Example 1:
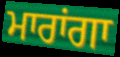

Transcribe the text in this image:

ਮਾਰਾਂਗਾ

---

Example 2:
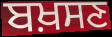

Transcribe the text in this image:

ਬਖ਼ਸਣ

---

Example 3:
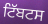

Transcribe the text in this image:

ਟਿੱਬਟਸ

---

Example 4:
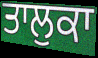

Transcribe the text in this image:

ਤਾਲੁਕਾ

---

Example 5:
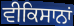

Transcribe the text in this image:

ਵੀਕਿਸਾਨਾਂ